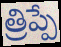
త్రిప్పే